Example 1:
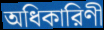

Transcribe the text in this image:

অধিকারিণী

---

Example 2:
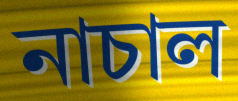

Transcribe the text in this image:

নাচাল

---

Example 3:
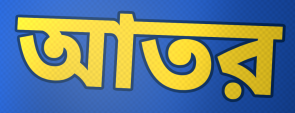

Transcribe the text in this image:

আতর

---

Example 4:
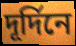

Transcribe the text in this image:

দূর্দিনে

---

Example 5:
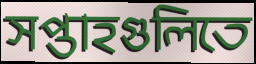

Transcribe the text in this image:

সপ্তাহগুলিতে